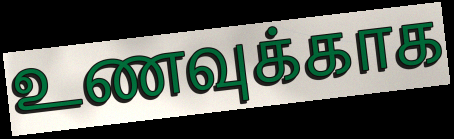
உணவுக்காக